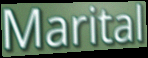
Marital